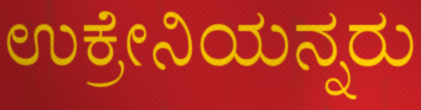
ಉಕ್ರೇನಿಯನ್ನರು